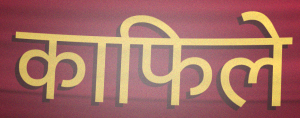
काफिले